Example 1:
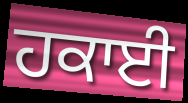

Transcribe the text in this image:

ਹਕਾਈ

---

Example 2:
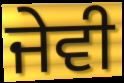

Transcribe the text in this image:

ਜੇਵੀ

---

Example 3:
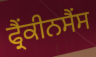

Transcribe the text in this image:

ਫ੍ਰੈਂਕੀਨਸੈਂਸ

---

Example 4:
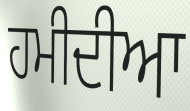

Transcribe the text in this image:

ਹਮੀਦੀਆ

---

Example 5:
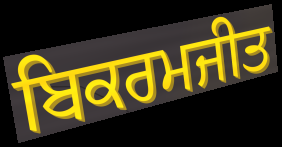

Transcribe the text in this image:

ਬਿਕਰਮਜੀਤ